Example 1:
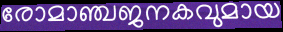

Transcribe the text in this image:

രോമാഞ്ചജനകവുമായ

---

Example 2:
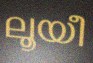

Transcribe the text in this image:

ലൂയീ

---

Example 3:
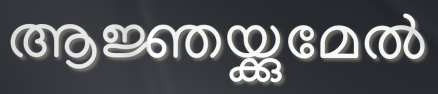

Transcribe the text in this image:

ആജ്ഞയ്ക്കുമേൽ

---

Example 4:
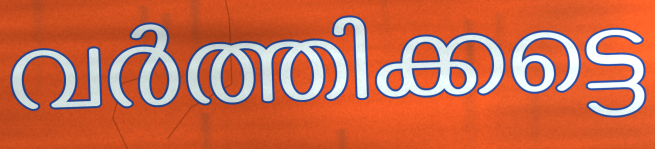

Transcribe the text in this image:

വർത്തിക്കട്ടെ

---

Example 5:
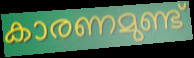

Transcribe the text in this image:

കാരണമുണ്ട്